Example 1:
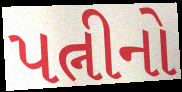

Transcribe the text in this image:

પત્નીનો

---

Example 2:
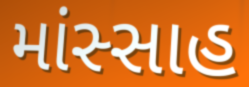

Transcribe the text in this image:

માંસ્સાહ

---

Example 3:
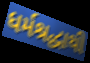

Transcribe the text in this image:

ધર્મશ્રદ્ધાથી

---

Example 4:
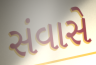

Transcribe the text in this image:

સંવાસે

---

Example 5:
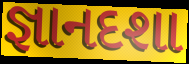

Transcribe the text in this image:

જ્ઞાનદશા